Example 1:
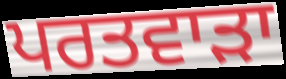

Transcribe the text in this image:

ਪਰਤਵਾੜਾ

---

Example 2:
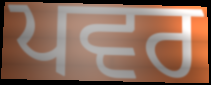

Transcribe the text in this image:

ਪਵਰ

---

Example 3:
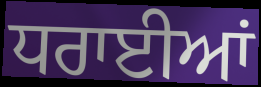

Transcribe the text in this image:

ਧਰਾਈਆਂ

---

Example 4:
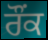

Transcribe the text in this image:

ਰੌਂਕ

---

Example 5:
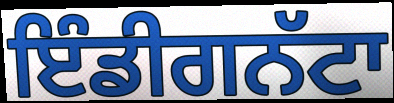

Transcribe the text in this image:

ਇੰਡੀਗਨੱਟਾ